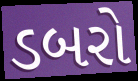
ડબરો